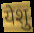
येशु